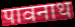
पावनाथ